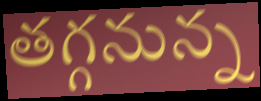
తగ్గనున్న